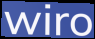
wiro